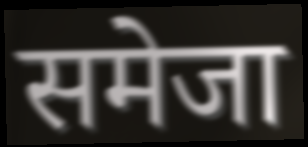
समेजा